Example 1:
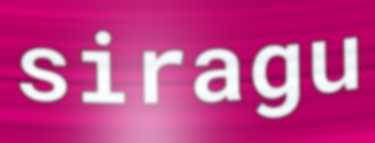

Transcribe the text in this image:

siragu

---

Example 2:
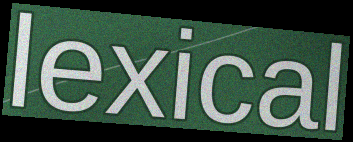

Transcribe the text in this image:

lexical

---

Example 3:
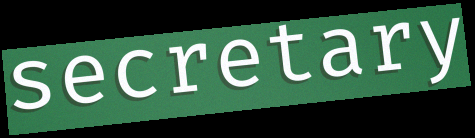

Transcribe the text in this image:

secretary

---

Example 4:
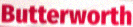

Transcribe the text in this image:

Butterworth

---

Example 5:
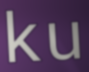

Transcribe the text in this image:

ku